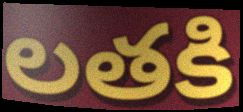
లతకి